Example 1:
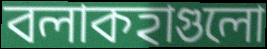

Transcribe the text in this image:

বলাকহাগুলো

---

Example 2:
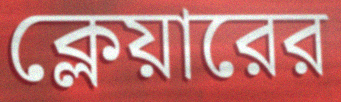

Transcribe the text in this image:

ক্লেয়ারের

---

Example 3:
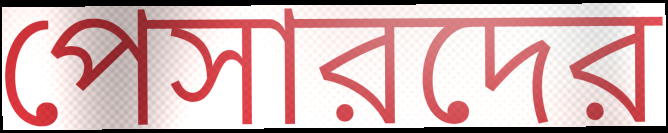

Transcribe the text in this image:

পেসারদের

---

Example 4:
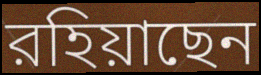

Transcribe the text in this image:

রহিয়াছেন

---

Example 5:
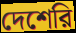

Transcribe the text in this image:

দেশেরি